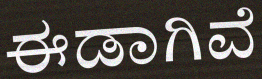
ಈಡಾಗಿವೆ